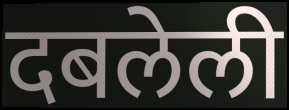
दबलेली